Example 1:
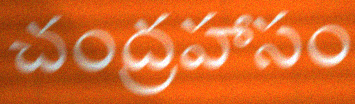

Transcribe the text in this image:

చంద్రహాసం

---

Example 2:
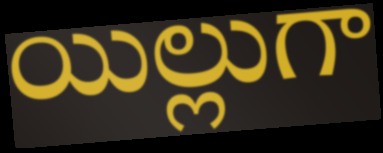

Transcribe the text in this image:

యిల్లుగా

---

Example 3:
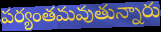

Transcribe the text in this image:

పర్యంతమవుతున్నారు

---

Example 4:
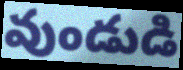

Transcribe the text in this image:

వుండుడి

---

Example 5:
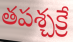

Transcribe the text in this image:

తపశ్చక్రే